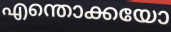
എന്തൊക്കയോ